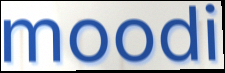
moodi